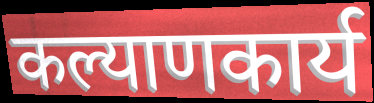
कल्याणकार्य